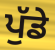
ਪੁੱਡੇ